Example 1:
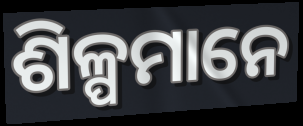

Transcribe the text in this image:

ଶିଳ୍ପମାନେ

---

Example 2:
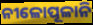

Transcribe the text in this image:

ନୀଳୋପୂଳାନି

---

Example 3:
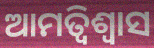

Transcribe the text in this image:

ଆମତ୍ବିଶ୍ୱାସ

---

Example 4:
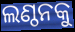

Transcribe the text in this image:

ଲଣ୍ଠନକୁ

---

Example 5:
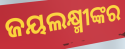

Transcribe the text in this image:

ଜୟଲକ୍ଷ୍ମୀଙ୍କର